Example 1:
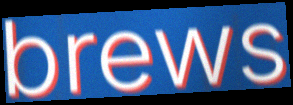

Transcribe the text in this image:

brews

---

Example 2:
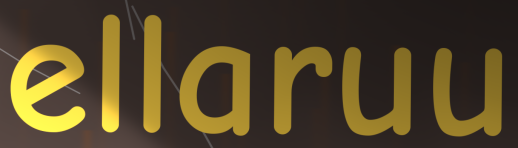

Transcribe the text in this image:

ellaruu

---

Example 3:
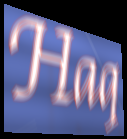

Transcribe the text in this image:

Haq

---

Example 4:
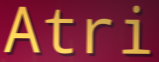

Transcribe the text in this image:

Atri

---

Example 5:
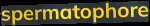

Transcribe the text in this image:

spermatophore